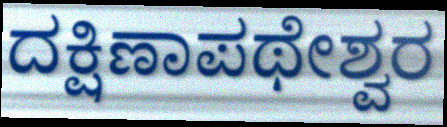
ದಕ್ಷಿಣಾಪಥೇಶ್ವರ